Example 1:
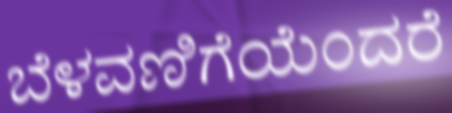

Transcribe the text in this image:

ಬೆಳವಣಿಗೆಯೆಂದರೆ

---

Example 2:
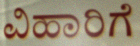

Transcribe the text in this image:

ವಿಹಾರಿಗೆ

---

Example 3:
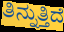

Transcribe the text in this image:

ತಿನ್ನುತ್ತಿದೆ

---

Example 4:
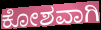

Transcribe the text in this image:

ಕೋಶವಾಗಿ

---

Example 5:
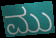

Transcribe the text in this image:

ಮು